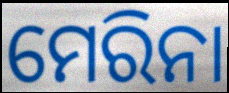
ମେରିନା